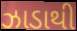
ઝાડાથી